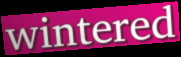
wintered